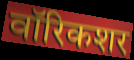
वॉरिकशर